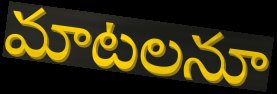
మాటలనూ